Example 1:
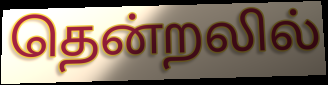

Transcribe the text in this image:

தென்றலில்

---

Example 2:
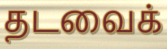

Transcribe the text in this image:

தடவைக்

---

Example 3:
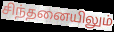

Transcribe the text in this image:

சிந்தனையிலும்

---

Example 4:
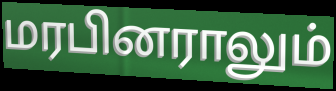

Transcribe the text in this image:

மரபினராலும்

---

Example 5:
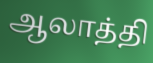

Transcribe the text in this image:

ஆலாத்தி